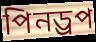
পিনড্রপ